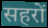
सहरों